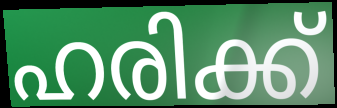
ഹരിക്ക്